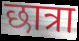
छात्रा